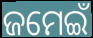
ଜମେଇଁ